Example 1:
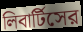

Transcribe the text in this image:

লিবার্টিসের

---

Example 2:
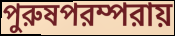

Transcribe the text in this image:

পুরুষপরম্পরায়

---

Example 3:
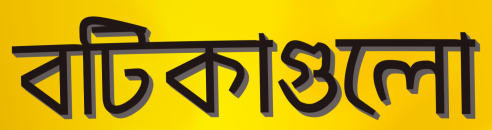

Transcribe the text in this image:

বটিকাগুলো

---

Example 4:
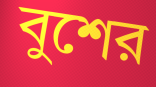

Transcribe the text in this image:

বুশের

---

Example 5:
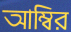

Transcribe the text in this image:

আম্বির